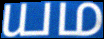
யம